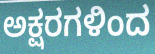
ಅಕ್ಷರಗಳಿಂದ